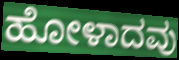
ಹೋಳಾದವು